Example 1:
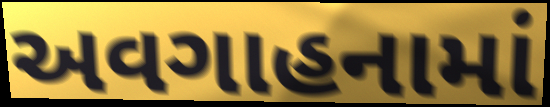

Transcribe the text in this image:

અવગાહનામાં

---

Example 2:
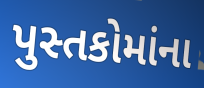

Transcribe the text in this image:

પુસ્તકોમાંના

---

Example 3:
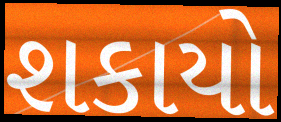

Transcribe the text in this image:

શકાયો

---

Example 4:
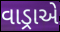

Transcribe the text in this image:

વાડ્રાએ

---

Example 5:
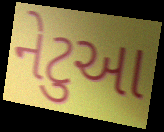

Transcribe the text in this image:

નેટુઆ